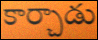
కార్చాడు